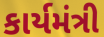
કાર્યમંત્રી